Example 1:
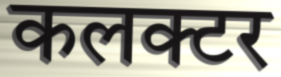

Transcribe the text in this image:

कलक्टर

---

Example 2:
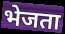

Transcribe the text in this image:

भेजता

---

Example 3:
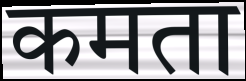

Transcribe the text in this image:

कमता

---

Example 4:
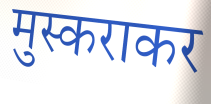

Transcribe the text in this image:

मुस्कराकर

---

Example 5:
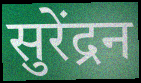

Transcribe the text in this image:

सुरेंद्रन